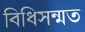
বিধিসন্মত